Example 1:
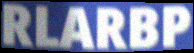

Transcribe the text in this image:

RLARBP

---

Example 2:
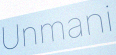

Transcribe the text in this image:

Unmani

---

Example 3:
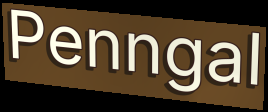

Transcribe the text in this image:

Penngal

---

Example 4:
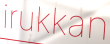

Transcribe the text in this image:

irukkan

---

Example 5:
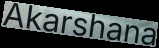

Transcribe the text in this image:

Akarshana